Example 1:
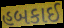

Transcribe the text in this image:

હબકાઈ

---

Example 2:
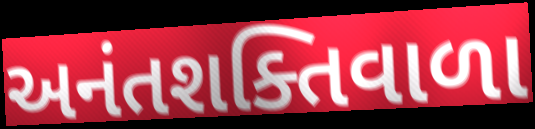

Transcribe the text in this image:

અનંતશક્તિવાળા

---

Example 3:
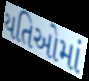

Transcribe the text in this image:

યતિઓમાં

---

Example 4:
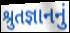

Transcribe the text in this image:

શ્રુતજ્ઞાનનું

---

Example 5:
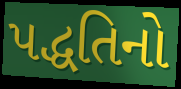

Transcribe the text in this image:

પદ્ધતિનો